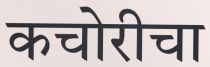
कचोरीचा